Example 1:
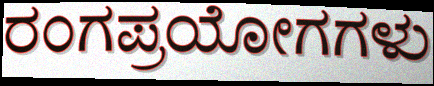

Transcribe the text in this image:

ರಂಗಪ್ರಯೋಗಗಳು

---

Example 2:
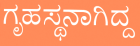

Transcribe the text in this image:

ಗೃಹಸ್ಥನಾಗಿದ್ದ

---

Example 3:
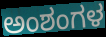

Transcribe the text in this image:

ಅಂಶಂಗಳ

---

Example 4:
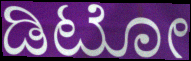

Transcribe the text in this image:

ಡಿಟೋ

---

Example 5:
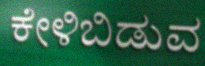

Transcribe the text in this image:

ಕೇಳಿಬಿಡುವ